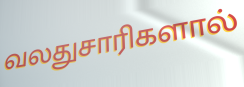
வலதுசாரிகளால்